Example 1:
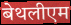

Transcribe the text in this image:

बेथलीएम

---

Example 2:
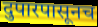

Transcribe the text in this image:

दुपारपासूनच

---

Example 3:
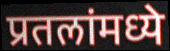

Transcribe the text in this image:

प्रतलांमध्ये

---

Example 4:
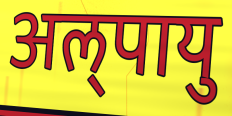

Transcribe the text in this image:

अल्पायु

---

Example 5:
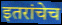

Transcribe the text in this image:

इतरांचेच